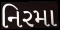
નિરમા